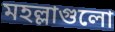
মহল্লাগুলো